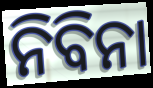
ନିବିନା